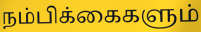
நம்பிக்கைகளும்